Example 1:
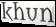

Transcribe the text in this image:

khun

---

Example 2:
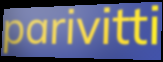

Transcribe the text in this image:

parivitti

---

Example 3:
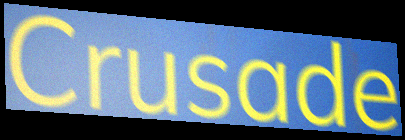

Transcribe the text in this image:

Crusade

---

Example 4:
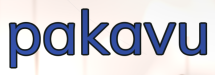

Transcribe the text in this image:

pakavu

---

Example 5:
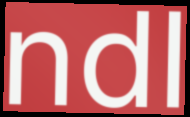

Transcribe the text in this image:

ndl